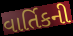
વાર્તિકની